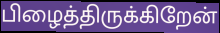
பிழைத்திருக்கிறேன்